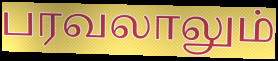
பரவலாலும்